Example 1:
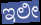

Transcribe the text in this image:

ಇಲೀ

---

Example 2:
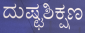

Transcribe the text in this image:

ದುಷ್ಟಶಿಕ್ಷಣ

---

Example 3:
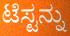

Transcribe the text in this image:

ಟೆಸ್ಟನ್ನು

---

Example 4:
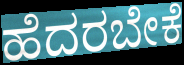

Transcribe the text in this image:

ಹೆದರಬೇಕೆ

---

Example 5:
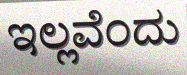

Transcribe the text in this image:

ಇಲ್ಲವೆಂದು